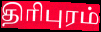
திரிபுரம்